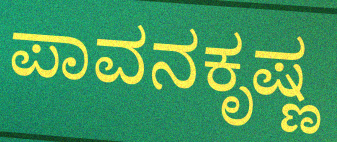
ಪಾವನಕೃಷ್ಣ